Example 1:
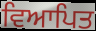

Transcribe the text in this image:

ਵਿਆਪਿਤ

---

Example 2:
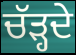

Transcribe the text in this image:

ਚੱੜ੍ਹਦੇ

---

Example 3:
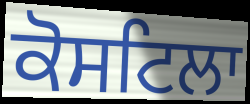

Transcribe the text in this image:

ਕੋਸਟਿਲਾ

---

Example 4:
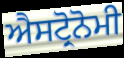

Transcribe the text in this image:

ਐਸਟ੍ਰੋਨੋਮੀ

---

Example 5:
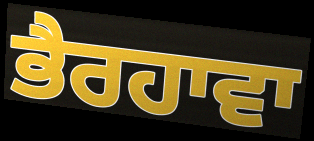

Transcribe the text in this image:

ਭੈਰਹਾਵਾ